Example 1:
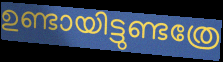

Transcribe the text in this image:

ഉണ്ടായിട്ടുണ്ടത്രേ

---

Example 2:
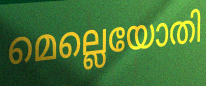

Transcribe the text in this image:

മെല്ലെയോതി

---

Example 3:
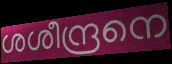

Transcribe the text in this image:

ശശീന്ദ്രനെ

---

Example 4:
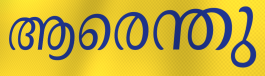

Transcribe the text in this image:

ആരെന്തു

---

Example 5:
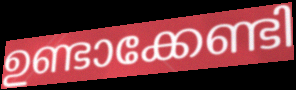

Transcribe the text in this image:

ഉണ്ടാക്കേണ്ടി